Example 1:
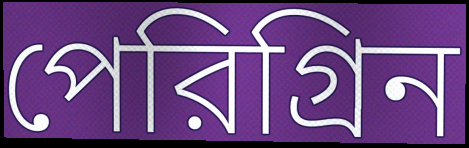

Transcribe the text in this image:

পেরিগ্রিন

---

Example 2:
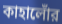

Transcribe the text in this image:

কাহালোঁর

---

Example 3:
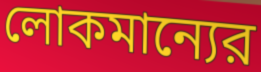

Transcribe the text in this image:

লোকমান্যের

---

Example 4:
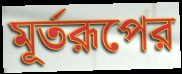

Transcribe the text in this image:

মূর্তরূপের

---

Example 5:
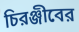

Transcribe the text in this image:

চিরঞ্জীবের